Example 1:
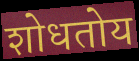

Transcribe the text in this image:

शोधतोय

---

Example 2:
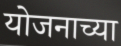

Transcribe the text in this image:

योजनाच्या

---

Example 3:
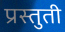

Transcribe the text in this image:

प्रस्तुती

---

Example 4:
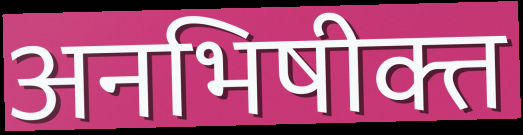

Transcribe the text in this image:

अनभिषीक्त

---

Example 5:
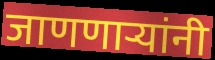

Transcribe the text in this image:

जाणणाऱ्यांनी